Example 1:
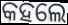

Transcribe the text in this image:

କହଲେ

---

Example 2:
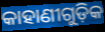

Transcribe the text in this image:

କାହାଣୀଗୁଡ଼ିକ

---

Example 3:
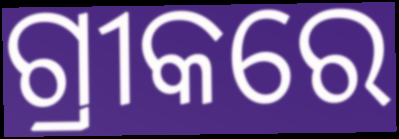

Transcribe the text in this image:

ଗ୍ରୀକରେ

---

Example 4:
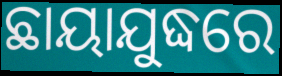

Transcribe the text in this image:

ଛାୟାଯୁଦ୍ଧରେ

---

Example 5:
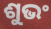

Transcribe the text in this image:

ଶୁଭଂ